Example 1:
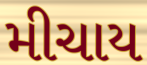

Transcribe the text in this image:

મીચાય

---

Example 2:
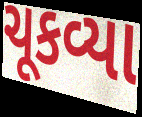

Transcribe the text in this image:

ચૂકવ્યા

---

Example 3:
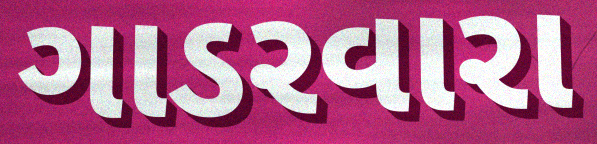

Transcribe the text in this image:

ગાડરવારા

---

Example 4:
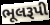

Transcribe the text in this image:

ભૂલરૂપી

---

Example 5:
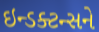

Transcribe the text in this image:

ઇન્ડક્ટન્સને